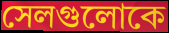
সেলগুলোকে